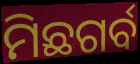
ମିଛଗର୍ବ